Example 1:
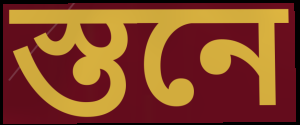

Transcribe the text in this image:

স্তনে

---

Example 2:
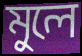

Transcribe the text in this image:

মুলে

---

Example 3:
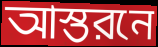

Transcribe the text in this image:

আস্তরনে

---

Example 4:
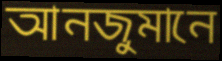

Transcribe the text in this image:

আনজুমানে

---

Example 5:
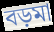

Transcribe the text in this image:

বড়মা